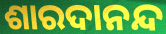
ଶାରଦାନନ୍ଦ